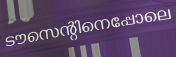
ടൗസെന്റിനെപ്പോലെ